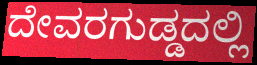
ದೇವರಗುಡ್ಡದಲ್ಲಿ